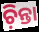
ଚ଼ିନ୍ତା